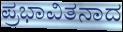
ಪ್ರಭಾವಿತನಾದ